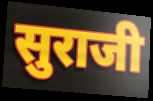
सुराजी